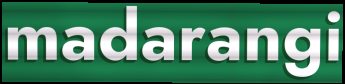
madarangi